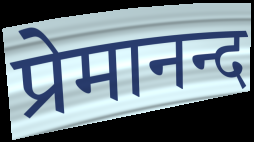
प्रेमानन्द